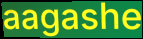
aagashe